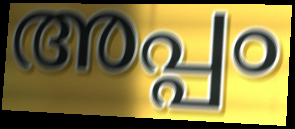
അപ്പം